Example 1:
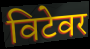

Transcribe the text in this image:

विटेवर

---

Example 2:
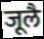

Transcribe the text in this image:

जूलै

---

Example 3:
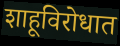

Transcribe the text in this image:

शाहूविरोधात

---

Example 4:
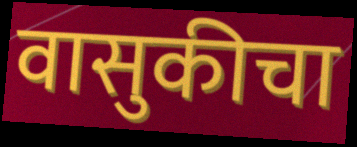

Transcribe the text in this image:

वासुकीचा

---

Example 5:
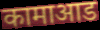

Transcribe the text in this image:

कामाआड